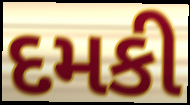
દમકી